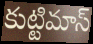
కుట్టిమాస్